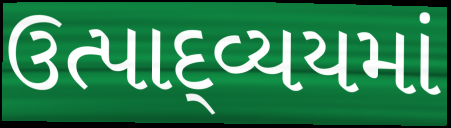
ઉત્પાદ્વ્યયમાં